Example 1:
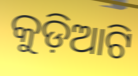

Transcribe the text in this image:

କୁଡ଼ିଆଟି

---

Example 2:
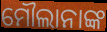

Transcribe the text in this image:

ମୌଲାନାଙ୍କ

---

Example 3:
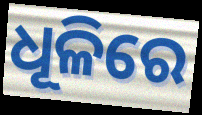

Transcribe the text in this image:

ଧୂଳିରେ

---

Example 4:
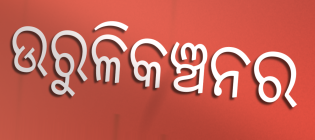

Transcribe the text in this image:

ଉରୁଳିକଞ୍ଚନର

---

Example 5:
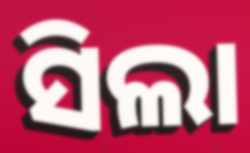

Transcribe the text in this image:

ସିଲା